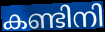
കണ്ടിനി